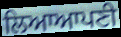
ਲਿਆਆਪਣੀ